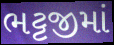
ભટ્ટજીમાં